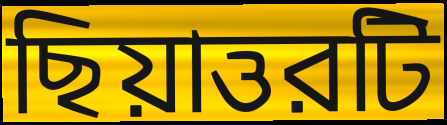
ছিয়াত্তরটি